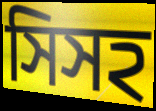
সিসহ